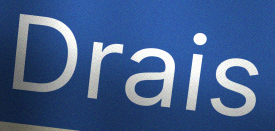
Drais